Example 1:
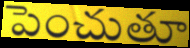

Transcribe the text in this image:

పెంచుతూ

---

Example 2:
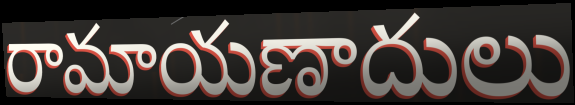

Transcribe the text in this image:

రామాయణాదులు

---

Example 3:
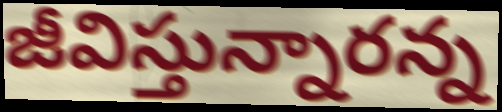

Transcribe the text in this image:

జీవిస్తున్నారన్న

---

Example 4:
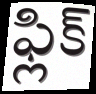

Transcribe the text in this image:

ఫ్లిక్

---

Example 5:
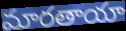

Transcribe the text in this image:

మారతాయా